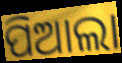
ପିଆଲା